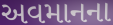
અવમાનના